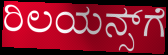
ರಿಲಯನ್ಸ್‌ಗೆ